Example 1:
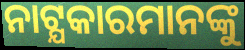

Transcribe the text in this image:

ନାଟ୍ଯକାରମାନଙ୍କୁ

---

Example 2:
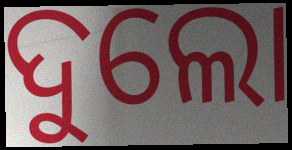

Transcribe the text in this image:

ଦୁଲୋ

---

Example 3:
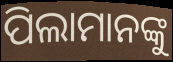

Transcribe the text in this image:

ପିଲାମାନଙ୍କୁ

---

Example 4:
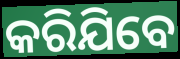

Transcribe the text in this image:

କରିଯିବେ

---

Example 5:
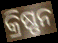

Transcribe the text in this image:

କ୍ରିଷ୍ଣନ